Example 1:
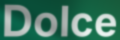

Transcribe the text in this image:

Dolce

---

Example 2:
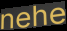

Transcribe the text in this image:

nehe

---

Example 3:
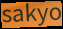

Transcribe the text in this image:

sakyo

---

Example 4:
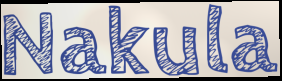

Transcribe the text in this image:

Nakula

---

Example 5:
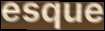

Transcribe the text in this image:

esque